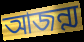
আজন্ম